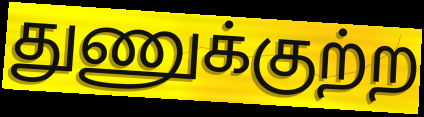
துணுக்குற்ற